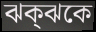
ঝক্ঝকে